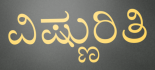
ವಿಷ್ಣುರಿತಿ